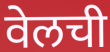
वेलची